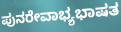
ಪುನರೇವಾಭ್ಯಭಾಷತ